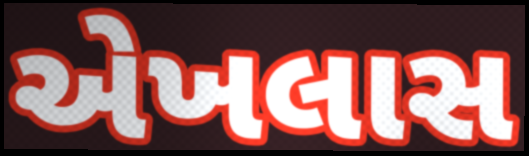
એખલાસ